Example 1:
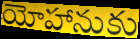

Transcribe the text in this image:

యోహానుకు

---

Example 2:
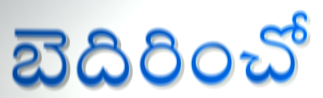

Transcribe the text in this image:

బెదిరించో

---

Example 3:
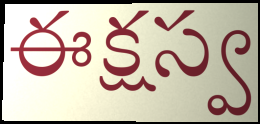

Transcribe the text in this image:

ఈక్షస్వ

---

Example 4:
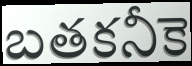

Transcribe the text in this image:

బతకనీకె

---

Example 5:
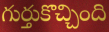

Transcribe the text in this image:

గుర్తుకొచ్చింది